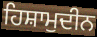
ਹਿਸ਼ਾਮੁਦੀਨ